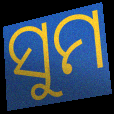
ସୁମ